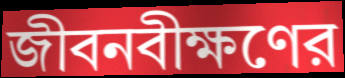
জীবনবীক্ষণের